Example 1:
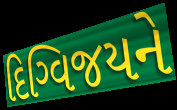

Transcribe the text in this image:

દિગ્વિજયને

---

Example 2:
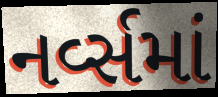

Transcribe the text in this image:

નર્વ્સમાં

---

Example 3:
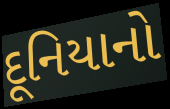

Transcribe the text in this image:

દૂનિયાનો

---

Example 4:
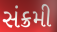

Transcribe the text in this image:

સંક્રમી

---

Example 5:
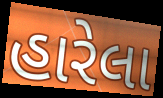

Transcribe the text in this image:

હારેલા